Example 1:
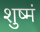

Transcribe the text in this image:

शुष्मं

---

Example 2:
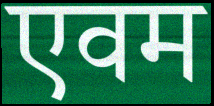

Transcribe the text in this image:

एवम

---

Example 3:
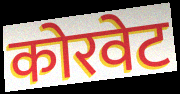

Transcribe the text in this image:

कोरवेट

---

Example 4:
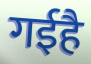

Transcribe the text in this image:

गईहै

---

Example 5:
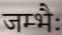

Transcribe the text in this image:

जम्भैः